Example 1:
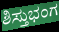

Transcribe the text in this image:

ಶಿಸ್ತುಭಂಗ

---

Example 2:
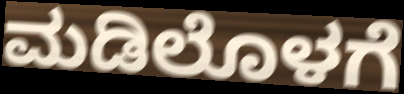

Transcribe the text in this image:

ಮಡಿಲೊಳಗೆ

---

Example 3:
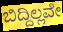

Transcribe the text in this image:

ಬಿದ್ದಿಲ್ಲವೇ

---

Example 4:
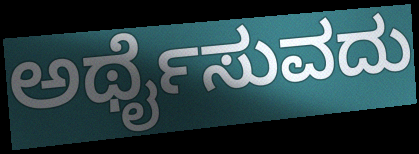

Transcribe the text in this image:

ಅರ್ಥೈಸುವದು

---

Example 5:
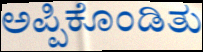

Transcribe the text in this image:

ಅಪ್ಪಿಕೊಂಡಿತು